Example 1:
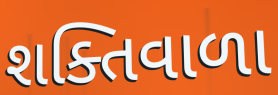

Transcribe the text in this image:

શક્તિવાળા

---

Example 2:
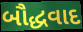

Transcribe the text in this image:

બૌદ્ધવાદ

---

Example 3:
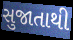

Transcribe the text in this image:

સુજાતાથી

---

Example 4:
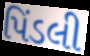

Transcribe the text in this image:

પિંડલી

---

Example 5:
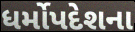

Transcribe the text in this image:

ધર્મોપદેશના